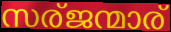
സര്ജന്മാര്